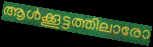
ആൾക്കൂട്ടത്തിലാരോ